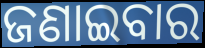
ଜଣାଇବାର